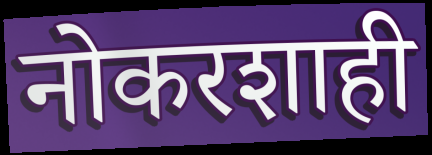
नोकरशाही